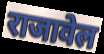
राजावेल